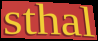
sthal